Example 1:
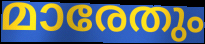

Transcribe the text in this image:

മാരേതും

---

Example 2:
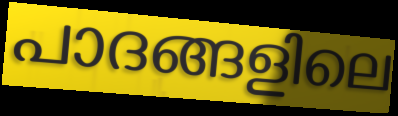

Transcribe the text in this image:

പാദങ്ങളിലെ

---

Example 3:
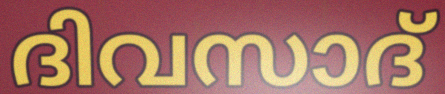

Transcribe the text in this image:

ദിവസാദ്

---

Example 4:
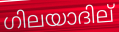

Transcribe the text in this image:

ഗിലയാദില്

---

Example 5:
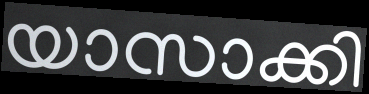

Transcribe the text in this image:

യാസാക്കി